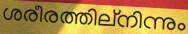
ശരീരത്തില്നിന്നും